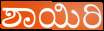
ಶಾಯಿರಿ